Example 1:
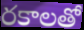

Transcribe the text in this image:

రకాలతో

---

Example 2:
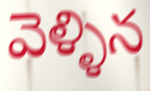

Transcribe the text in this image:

వెళ్ళిన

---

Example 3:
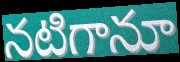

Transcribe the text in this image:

నటిగానూ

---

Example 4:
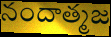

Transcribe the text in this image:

నందాత్మజ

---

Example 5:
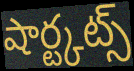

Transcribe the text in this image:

షార్ట్కట్స్